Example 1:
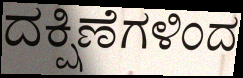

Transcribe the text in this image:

ದಕ್ಷಿಣೆಗಳಿಂದ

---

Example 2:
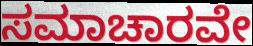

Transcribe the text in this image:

ಸಮಾಚಾರವೇ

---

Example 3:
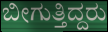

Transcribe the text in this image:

ಬೀಗುತ್ತಿದ್ದರು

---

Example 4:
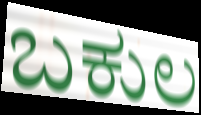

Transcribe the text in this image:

ಬಕುಲ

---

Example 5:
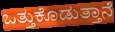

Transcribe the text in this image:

ಒತ್ತುಕೊಡುತ್ತಾನೆ